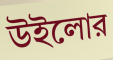
উইলোর